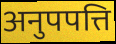
अनुपपत्ति